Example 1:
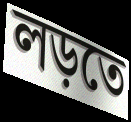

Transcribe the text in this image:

লড়তে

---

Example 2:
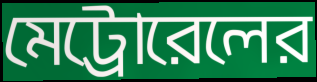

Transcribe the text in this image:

মেট্রোরেলের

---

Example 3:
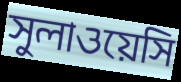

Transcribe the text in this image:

সুলাওয়েসি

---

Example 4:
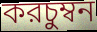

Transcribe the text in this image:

করচুম্বন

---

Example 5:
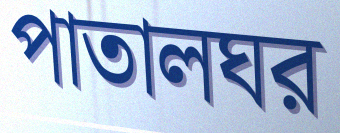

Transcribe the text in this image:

পাতালঘর